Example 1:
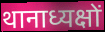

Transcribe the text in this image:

थानाध्यक्षों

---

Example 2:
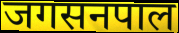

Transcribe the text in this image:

जगसनपाल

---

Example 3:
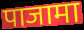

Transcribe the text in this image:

पाजामा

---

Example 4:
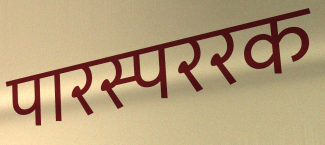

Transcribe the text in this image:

पारस्पररक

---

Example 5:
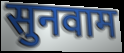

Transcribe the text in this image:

सुनवाम